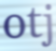
otj